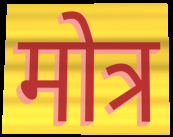
मोत्र